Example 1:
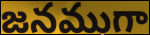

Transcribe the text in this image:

జనముగా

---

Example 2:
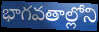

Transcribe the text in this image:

భాగవతాల్లోని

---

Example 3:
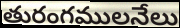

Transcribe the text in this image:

తురంగములనేలు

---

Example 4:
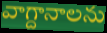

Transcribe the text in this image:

వాగ్దానాలను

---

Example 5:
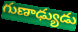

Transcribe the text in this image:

గుణాఢ్యుడు